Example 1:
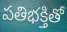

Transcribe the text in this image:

పతిభక్తితో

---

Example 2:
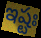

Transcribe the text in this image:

ఇష్టః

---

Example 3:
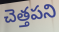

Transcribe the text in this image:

చెత్తపని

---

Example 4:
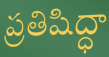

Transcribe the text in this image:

ప్రతిషిద్ధా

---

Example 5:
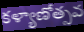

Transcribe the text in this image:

కళ్యాణోత్సవ